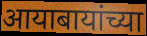
आयाबायांच्या